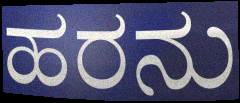
ಹರನು